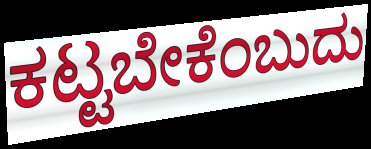
ಕಟ್ಟಬೇಕೆಂಬುದು